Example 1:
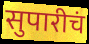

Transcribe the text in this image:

सुपारीचं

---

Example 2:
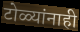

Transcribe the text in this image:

टोळ्यांनाही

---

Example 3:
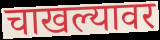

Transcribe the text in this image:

चाखल्यावर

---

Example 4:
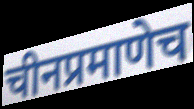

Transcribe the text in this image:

चीनप्रमाणेच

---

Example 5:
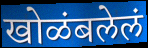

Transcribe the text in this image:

खोळंबलेलं